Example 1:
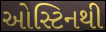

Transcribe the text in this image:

ઓસ્ટિનથી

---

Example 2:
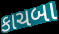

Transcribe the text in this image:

કાચબા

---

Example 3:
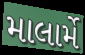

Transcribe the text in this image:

માલાર્મે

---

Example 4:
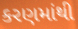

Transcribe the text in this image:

કરણમાંથી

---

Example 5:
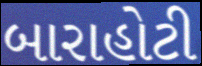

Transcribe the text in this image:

બારાહોટી